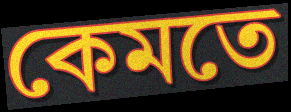
কেমতে